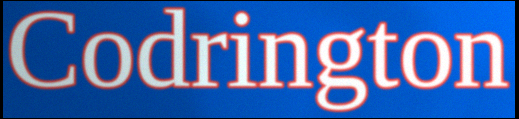
Codrington